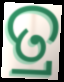
ତ୍ର